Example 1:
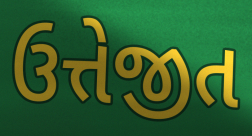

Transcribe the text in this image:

ઉત્તેજીત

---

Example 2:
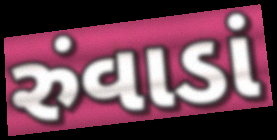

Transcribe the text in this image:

રુંવાડાં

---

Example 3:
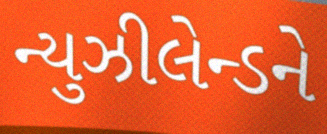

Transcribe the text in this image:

ન્યુઝીલેન્ડને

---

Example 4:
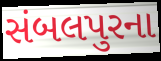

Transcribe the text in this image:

સંબલપુરના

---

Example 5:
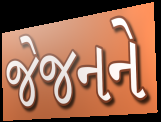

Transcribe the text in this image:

જેજનને